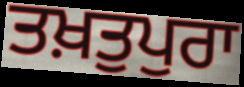
ਤਖ਼ਤੁਪੁਰਾ